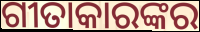
ଗୀତାକାରଙ୍କର